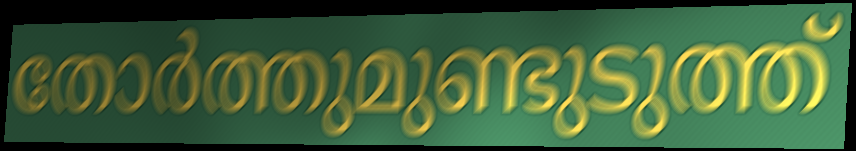
തോർത്തുമുണ്ടുടുത്ത്